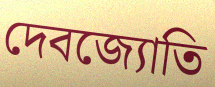
দেবজ্যোতি